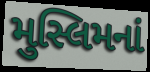
મુસ્લિમનાં